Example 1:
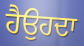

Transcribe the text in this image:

ਹੈਉਹਦਾ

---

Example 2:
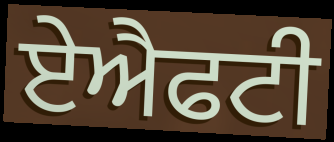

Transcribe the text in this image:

ਏਐਫਟੀ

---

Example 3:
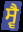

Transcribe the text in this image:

ਸ੍ਵੈ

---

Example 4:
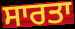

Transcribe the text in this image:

ਸਾਰਤਾ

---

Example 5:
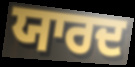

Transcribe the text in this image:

ਯਾਰਦ